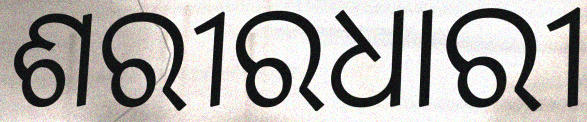
ଶରୀରଧାରୀ